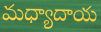
మధ్యాదాయ